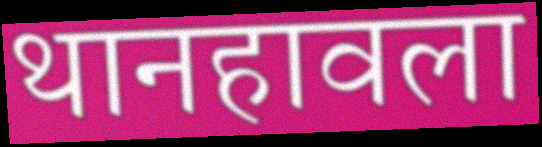
थानहावला